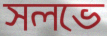
সলভে